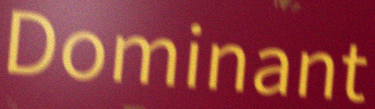
Dominant